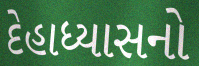
દેહાધ્યાસનો